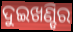
ଦୁଇଖଣ୍ଡିର